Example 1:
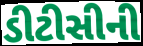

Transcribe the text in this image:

ડીટીસીની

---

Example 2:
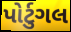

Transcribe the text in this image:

પોર્ટુગલ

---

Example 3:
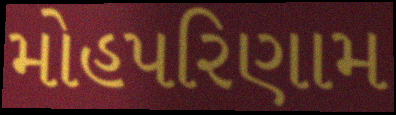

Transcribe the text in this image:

મોહપરિણામ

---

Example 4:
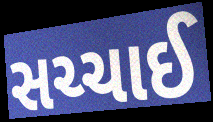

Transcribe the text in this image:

સચ્ચાઈ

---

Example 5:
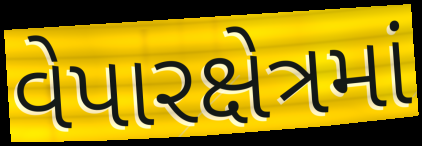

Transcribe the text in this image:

વેપારક્ષેત્રમાં